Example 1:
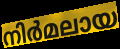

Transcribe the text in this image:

നിർമലായ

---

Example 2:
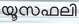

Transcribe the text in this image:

യൂസഫലി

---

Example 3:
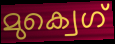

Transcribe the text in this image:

മുക്വെഗ്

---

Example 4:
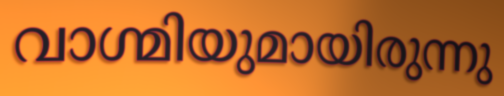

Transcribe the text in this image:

വാഗ്മിയുമായിരുന്നു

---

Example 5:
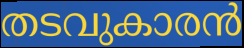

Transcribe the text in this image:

തടവുകാരൻ